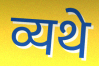
व्यथे